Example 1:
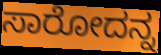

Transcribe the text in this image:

ಸಾರೋದನ್ನ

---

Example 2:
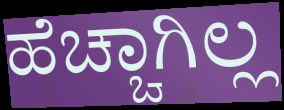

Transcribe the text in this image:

ಹೆಚ್ಚಾಗಿಲ್ಲ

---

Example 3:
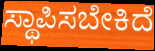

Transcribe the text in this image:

ಸ್ಥಾಪಿಸಬೇಕಿದೆ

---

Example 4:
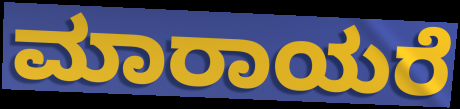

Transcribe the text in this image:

ಮಾರಾಯರೆ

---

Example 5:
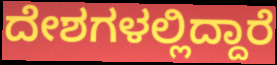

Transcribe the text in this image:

ದೇಶಗಳಲ್ಲಿದ್ದಾರೆ